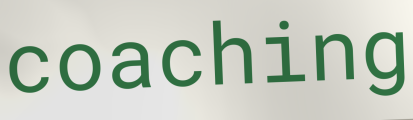
coaching